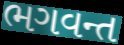
ભગવન્ત